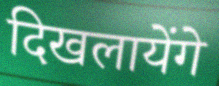
दिखलायेंगे